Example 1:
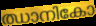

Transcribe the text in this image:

ഝാനികോ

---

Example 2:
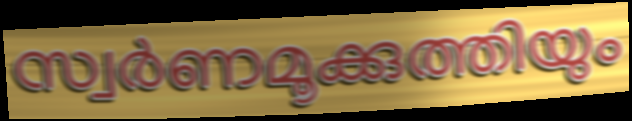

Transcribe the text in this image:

സ്വർണമൂക്കുത്തിയും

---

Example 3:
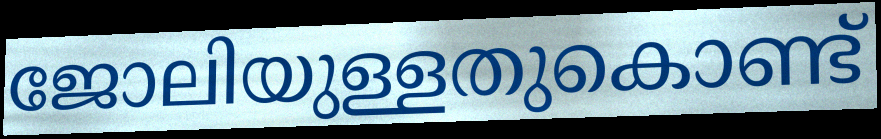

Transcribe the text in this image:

ജോലിയുള്ളതുകൊണ്ട്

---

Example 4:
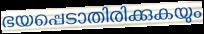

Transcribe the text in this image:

ഭയപ്പെടാതിരിക്കുകയും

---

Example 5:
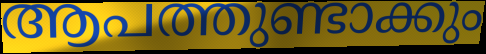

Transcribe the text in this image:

ആപത്തുണ്ടാക്കും